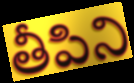
తీపిని